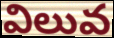
విలువ